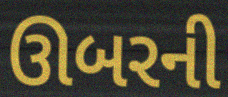
ઊબરની